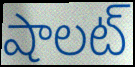
షాలట్